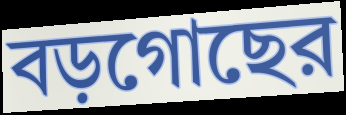
বড়গোছের